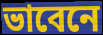
ভাবেনে